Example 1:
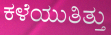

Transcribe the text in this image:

ಕಳೆಯುತಿತ್ತು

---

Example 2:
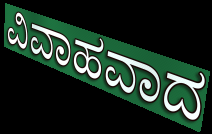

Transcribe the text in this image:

ವಿವಾಹವಾದ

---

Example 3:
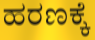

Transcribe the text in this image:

ಹರಣಕ್ಕೆ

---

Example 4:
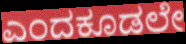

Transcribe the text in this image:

ಎಂದಕೂಡಲೇ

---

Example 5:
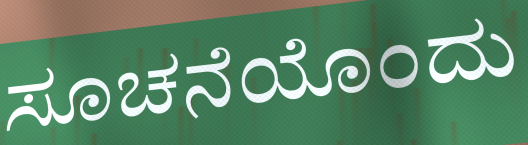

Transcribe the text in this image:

ಸೂಚನೆಯೊಂದು